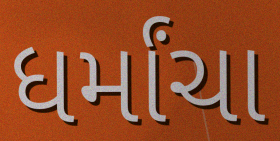
ધર્માંચા